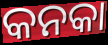
କନକା